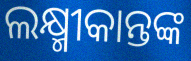
ଲକ୍ଷ୍ମୀକାନ୍ତଙ୍କ